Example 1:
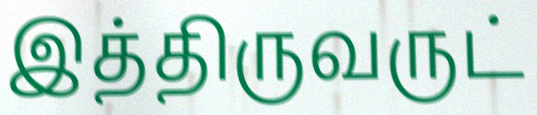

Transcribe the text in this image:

இத்திருவருட்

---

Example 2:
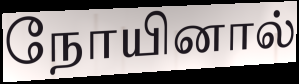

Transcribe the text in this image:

நோயினால்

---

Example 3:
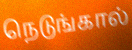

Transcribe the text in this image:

நெடுங்கால்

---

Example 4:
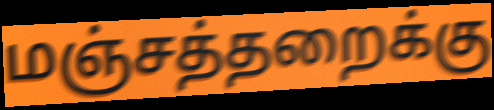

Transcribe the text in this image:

மஞ்சத்தறைக்கு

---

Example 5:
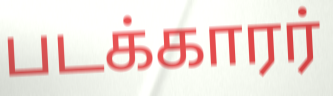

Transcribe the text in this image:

படக்காரர்